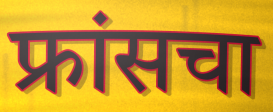
फ्रांसचा